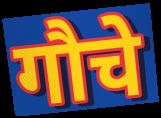
गौचे